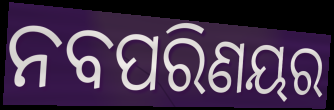
ନବପରିଣୟର